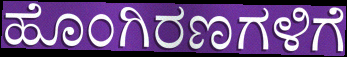
ಹೊಂಗಿರಣಗಳಿಗೆ